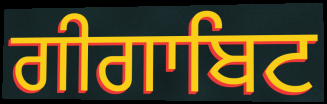
ਗੀਗਾਬਿਟ